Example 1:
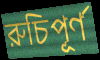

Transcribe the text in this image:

ৰুচিপূৰ্ণ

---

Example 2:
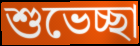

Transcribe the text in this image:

শুভেচ্ছা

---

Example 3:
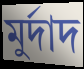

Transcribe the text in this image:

মুৰ্দাদ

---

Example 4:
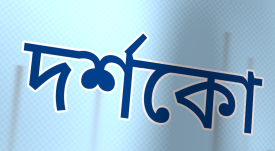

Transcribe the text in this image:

দৰ্শকো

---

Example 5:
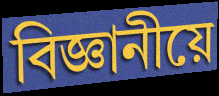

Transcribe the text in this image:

বিজ্ঞানীয়ে